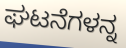
ಘಟನೆಗಳನ್ನ